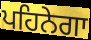
ਪਹਿਨੇਗਾ